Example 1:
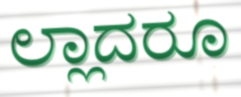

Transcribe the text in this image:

ಲ್ಲಾದರೂ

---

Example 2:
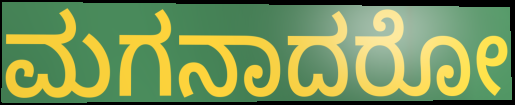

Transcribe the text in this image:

ಮಗನಾದರೋ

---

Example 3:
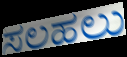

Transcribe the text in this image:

ಸಲಹಲು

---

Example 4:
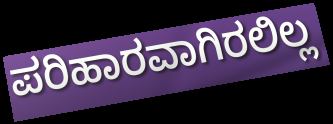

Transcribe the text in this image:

ಪರಿಹಾರವಾಗಿರಲಿಲ್ಲ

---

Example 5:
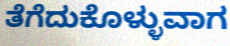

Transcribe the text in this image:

ತೆಗೆದುಕೊಳ್ಳುವಾಗ